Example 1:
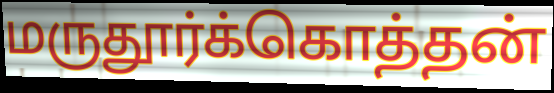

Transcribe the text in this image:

மருதூர்க்கொத்தன்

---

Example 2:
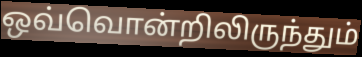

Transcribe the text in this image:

ஒவ்வொன்றிலிருந்தும்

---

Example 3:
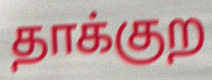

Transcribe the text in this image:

தாக்குற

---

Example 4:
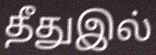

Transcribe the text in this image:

தீதுஇல்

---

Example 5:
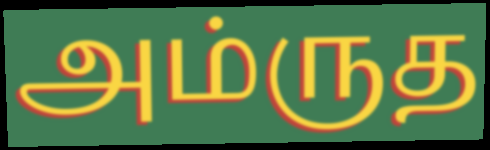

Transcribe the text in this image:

அம்ருத